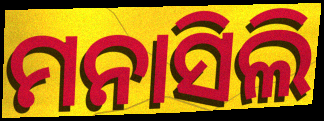
ମନାସିଲି